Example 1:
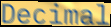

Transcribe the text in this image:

Decimal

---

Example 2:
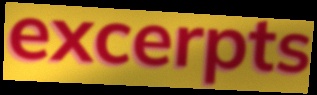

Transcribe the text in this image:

excerpts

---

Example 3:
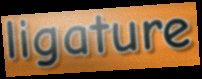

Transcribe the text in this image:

ligature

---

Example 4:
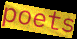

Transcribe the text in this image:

poets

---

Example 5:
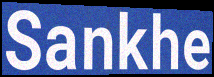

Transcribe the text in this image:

Sankhe